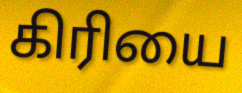
கிரியை